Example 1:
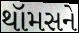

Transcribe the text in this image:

થૉમસને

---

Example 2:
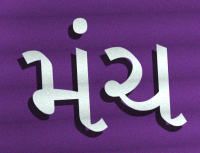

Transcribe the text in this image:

મંચ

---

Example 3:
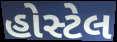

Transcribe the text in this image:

હોસ્ટેલ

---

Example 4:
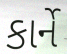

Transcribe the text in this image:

કાર્ને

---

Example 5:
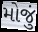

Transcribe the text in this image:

મોજું